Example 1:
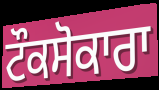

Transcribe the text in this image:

ਟੌਕਸੋਕਾਰਾ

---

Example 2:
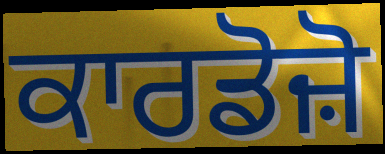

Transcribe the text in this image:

ਕਾਰਡੋਜ਼ੋ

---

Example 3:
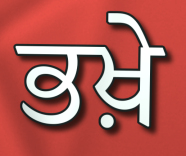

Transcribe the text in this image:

ਭਖ਼ੇ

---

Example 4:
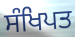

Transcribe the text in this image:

ਸੰਖਿਪਤ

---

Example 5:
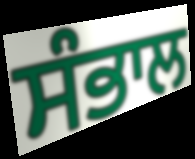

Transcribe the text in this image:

ਸੰਭਾਲ